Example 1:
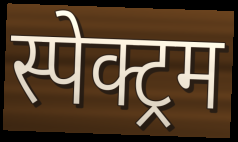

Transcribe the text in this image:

स्पेक्ट्रम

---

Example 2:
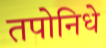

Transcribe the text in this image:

तपोनिधे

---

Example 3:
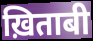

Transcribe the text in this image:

ख़िताबी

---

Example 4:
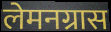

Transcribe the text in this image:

लेमनग्रास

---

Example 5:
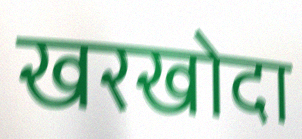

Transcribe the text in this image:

खरखोदा